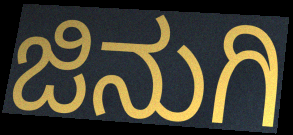
ಜಿನುಗಿ